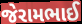
જેરામભાઈ